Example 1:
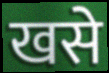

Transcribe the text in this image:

खसे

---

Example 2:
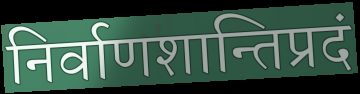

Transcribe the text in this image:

निर्वाणशान्तिप्रदं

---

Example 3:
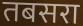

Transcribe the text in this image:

तबसरा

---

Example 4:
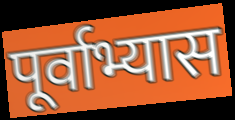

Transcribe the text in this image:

पूर्वाभ्यास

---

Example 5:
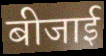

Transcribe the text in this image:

बीजाई